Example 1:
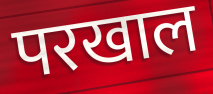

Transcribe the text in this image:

परखाल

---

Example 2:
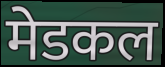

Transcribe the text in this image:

मेडकल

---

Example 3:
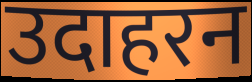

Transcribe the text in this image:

उदाहरन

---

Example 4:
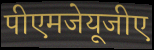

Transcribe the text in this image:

पीएमजेयूजीए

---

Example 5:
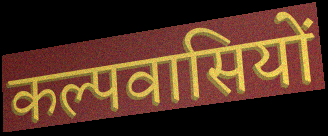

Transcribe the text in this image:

कल्पवासियों